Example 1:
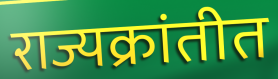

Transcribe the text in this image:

राज्यक्रांतीत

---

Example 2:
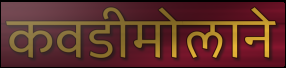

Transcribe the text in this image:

कवडीमोलाने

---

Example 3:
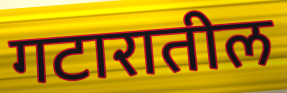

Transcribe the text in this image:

गटारातील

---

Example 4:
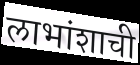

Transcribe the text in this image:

लाभांशाची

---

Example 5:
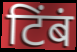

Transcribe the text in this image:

टिंबं